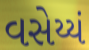
વસેય્યં